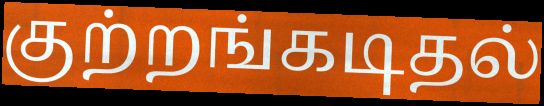
குற்றங்கடிதல்